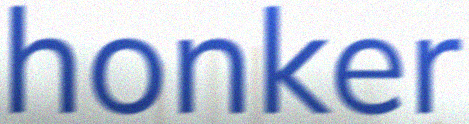
honker